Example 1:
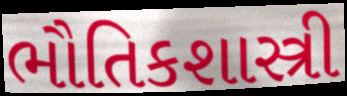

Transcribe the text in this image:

ભૌતિકશાસ્ત્રી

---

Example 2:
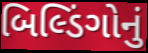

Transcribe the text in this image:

બિલ્ડિંગોનું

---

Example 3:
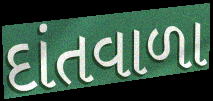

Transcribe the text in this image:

દાંતવાળા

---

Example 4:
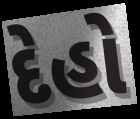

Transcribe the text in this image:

દેહો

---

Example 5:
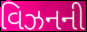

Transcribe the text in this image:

વિઝનની